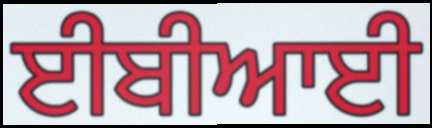
ਈਬੀਆਈ